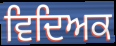
ਵਿਦਿਅਕ